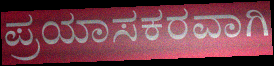
ಪ್ರಯಾಸಕರವಾಗಿ